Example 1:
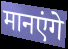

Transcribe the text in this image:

मानएंगे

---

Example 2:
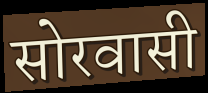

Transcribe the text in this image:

सोरवासी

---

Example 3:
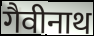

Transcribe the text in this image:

गैवीनाथ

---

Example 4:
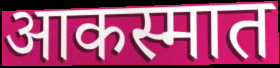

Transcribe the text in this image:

आकस्मात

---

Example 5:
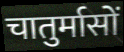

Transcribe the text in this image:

चातुर्मासों